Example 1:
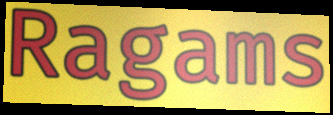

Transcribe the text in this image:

Ragams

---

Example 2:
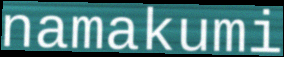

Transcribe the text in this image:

namakumi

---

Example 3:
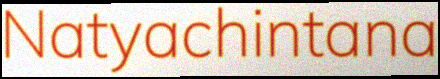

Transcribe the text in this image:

Natyachintana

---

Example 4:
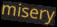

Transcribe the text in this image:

misery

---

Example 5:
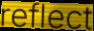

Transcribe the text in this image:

reflect